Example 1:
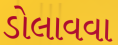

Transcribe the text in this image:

ડોલાવવા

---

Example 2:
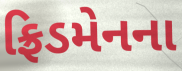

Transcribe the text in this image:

ફ્રિડમેનના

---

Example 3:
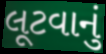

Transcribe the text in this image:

લૂટવાનું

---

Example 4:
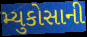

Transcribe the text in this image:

મ્યુકોસાની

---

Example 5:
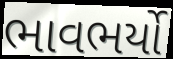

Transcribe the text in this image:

ભાવભર્યો